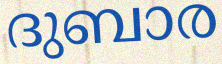
ദുബാര